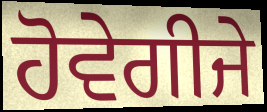
ਹੋਵੇਗੀਜੇ